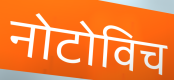
नोटोविच